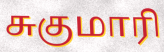
சுகுமாரி